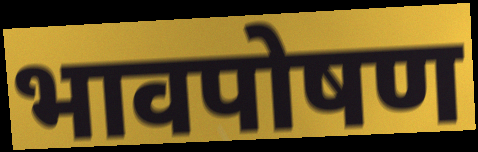
भावपोषण